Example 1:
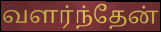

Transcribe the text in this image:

வளர்ந்தேன்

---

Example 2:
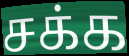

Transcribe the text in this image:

சக்க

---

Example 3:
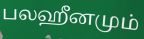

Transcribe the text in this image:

பலஹீனமும்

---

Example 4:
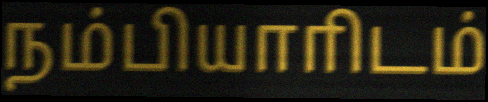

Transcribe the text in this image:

நம்பியாரிடம்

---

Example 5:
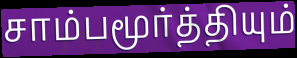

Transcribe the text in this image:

சாம்பமூர்த்தியும்